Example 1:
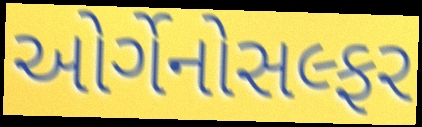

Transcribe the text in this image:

ઓર્ગેનોસલ્ફર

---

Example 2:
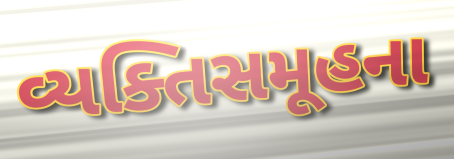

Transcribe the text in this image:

વ્યક્તિસમૂહના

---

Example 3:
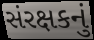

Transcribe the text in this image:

સંરક્ષકનું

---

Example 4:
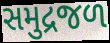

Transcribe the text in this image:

સમુદ્રજળ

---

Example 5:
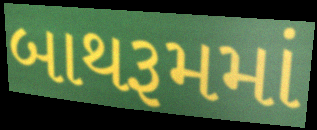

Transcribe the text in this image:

બાથરૂમમાં